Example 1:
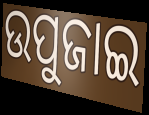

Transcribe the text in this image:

ଉପୁଜାଇ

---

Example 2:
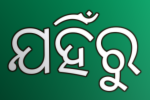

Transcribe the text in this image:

ଯହିଁରୁ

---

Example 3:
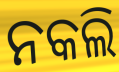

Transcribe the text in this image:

ନକଲି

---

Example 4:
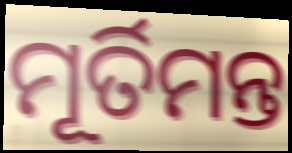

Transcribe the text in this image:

ମୂର୍ତିମନ୍ତ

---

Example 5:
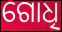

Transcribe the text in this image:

ଗୋଧି